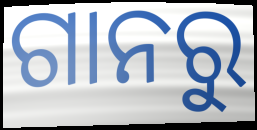
ଗାନରୁ